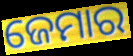
ଜେମାର